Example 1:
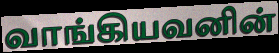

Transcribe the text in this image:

வாங்கியவனின்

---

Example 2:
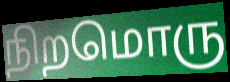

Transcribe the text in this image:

நிறமொரு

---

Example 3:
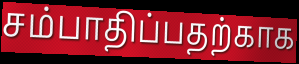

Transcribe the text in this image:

சம்பாதிப்பதற்காக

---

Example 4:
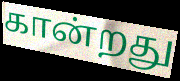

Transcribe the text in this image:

கான்றது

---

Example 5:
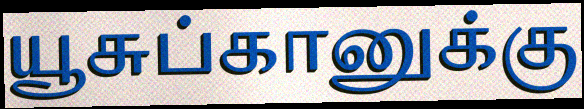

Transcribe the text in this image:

யூசுப்கானுக்கு